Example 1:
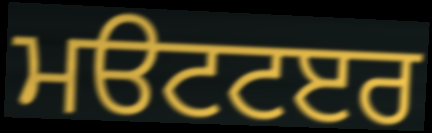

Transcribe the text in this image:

ਮੳਟਟੲਰ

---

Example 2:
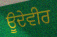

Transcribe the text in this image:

ਊਦੇਵੀਰ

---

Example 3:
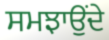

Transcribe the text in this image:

ਸਮਝਾਉੰਦੇ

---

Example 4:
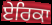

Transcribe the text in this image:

ਏਰਿਕਾ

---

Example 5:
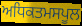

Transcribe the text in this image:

ਅਧਿਕਤਮਸਪੂਲ